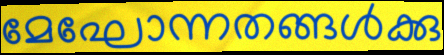
മേഘോന്നതങ്ങൾക്കു